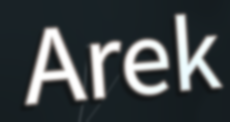
Arek